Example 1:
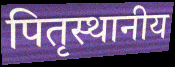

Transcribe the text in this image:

पितृस्थानीय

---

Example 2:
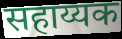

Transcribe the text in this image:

सहाय्यक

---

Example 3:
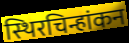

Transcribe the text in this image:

स्थिरचिन्हांकन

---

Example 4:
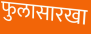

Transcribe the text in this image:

फुलासारखा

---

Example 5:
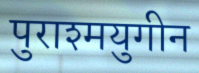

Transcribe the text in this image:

पुराश्मयुगीन